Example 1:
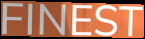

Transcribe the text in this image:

FINEST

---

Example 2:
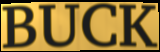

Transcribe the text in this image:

BUCK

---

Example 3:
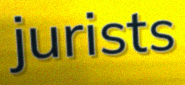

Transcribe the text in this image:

jurists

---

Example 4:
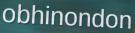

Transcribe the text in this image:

obhinondon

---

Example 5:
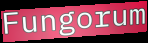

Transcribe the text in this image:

Fungorum